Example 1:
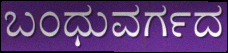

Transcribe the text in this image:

ಬಂಧುವರ್ಗದ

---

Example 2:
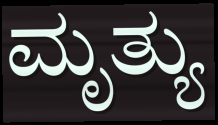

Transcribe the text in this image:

ಮೃತ್ಯು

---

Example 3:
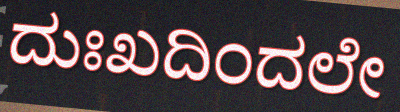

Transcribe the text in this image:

ದುಃಖದಿಂದಲೇ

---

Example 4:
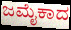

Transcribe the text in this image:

ಜಮೈಕಾದ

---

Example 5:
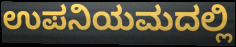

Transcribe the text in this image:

ಉಪನಿಯಮದಲ್ಲಿ